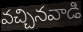
వచ్చినవాడి